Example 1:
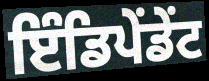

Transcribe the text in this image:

ਇੰਡਿਪੇਂਡੇਂਟ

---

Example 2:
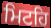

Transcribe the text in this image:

ਮਿਟਹਿ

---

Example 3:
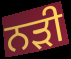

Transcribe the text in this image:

ਨੜੀ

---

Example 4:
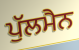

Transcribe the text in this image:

ਪੁੱਲਮੈਨ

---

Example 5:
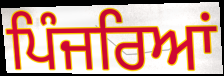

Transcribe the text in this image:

ਪਿੰਜਰਿਆਂ